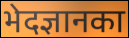
भेदज्ञानका